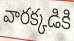
వారక్కడికి